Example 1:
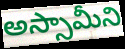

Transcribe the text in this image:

అస్సామీని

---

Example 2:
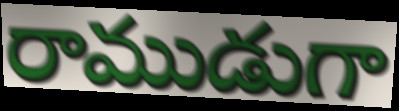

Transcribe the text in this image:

రాముడుగా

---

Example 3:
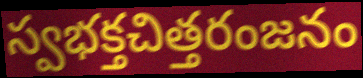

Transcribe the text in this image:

స్వభక్తచిత్తరంజనం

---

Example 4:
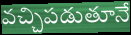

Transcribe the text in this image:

వచ్చిపడుతూనే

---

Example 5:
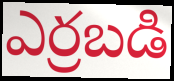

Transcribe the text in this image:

ఎర్రబడి